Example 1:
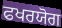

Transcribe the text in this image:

ਫਖਰਯੋਗ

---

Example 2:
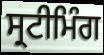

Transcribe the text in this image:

ਸ੍ਰਟੀਮਿੰਗ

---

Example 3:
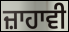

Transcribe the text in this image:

ਜ਼ਾਹਾਵੀ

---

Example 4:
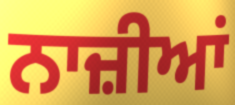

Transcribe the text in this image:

ਨਾਜ਼ੀਆਂ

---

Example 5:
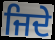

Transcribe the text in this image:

ਜਿਦੇ